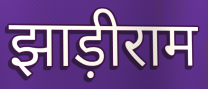
झाड़ीराम